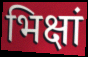
भिक्षां